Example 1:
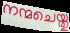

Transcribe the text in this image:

നന്മചെയ്തു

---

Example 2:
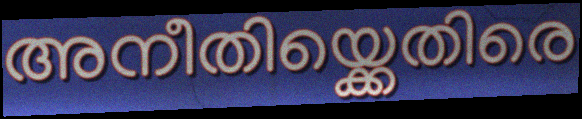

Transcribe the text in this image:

അനീതിയ്ക്കെതിരെ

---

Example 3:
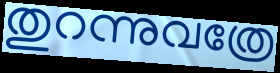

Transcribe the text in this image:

തുറന്നുവത്രേ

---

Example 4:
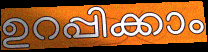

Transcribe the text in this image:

ഉറപ്പിക്കാം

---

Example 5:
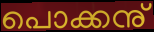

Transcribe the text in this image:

പൊക്കനു്